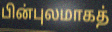
பின்புலமாகத்